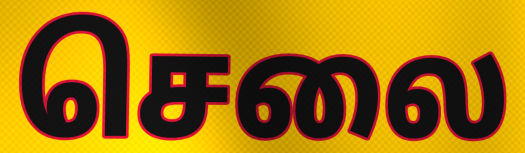
செலை